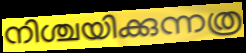
നിശ്ചയിക്കുന്നത്ര